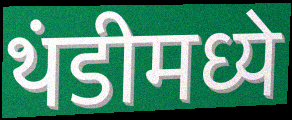
थंडीमध्ये